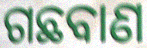
ଗଛବାଣ